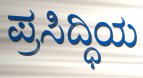
ಪ್ರಸಿದ್ಧಿಯ